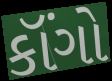
કૉંગો